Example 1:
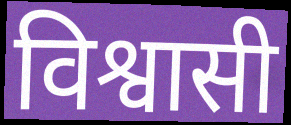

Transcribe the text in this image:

विश्वासी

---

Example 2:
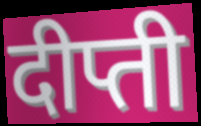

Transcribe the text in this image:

दीप्ती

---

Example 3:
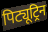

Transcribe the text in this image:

पिट्यूट्रिन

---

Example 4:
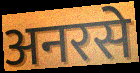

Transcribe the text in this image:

अनरसे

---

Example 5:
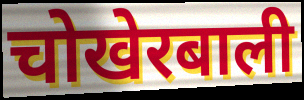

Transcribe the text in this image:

चोखेरबाली